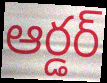
ఆర్డర్